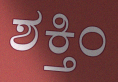
ಶಕ್ತಿಂ